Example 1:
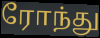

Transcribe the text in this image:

ரோந்து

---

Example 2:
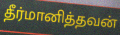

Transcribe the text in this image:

தீர்மானித்தவன்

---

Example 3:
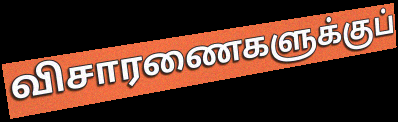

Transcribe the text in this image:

விசாரணைகளுக்குப்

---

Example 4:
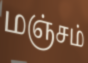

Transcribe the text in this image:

மஞ்சம்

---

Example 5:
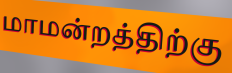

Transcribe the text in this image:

மாமன்றத்திற்கு